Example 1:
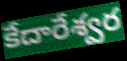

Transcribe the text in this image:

కేదారేశ్వర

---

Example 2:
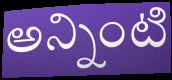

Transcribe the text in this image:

అన్నింటి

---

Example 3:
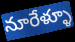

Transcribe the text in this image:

నూరేళ్ళూ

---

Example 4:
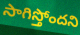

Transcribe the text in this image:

సాగిస్తోందని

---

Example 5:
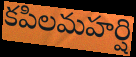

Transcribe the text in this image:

కపిలమహర్షి